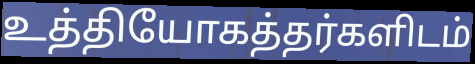
உத்தியோகத்தர்களிடம்